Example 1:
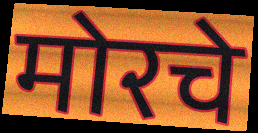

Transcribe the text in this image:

मोरचे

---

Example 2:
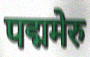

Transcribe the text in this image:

पद्ममेरु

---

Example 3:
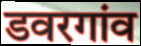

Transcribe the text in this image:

डवरगांव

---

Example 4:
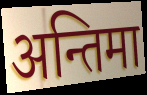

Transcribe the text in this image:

अन्तिमा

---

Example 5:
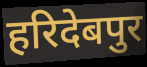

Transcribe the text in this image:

हरिदेबपुर